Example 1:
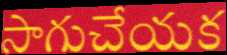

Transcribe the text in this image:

సాగుచేయక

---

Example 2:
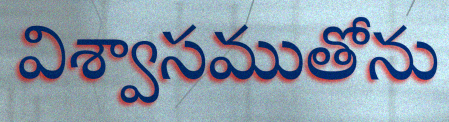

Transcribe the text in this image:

విశ్వాసముతోను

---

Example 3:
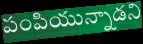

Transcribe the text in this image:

పంపియున్నాడని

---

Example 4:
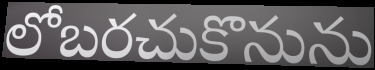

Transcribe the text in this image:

లోబరచుకొనును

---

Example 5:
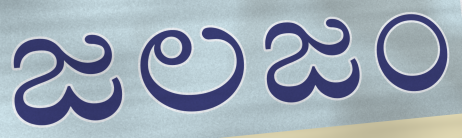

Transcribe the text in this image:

జలజం